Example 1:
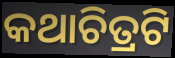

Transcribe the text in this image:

କଥାଚିତ୍ରଟି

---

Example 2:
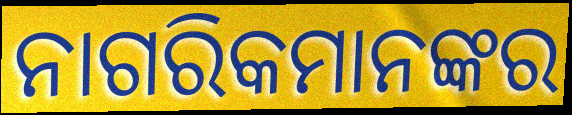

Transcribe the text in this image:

ନାଗରିକମାନଙ୍କର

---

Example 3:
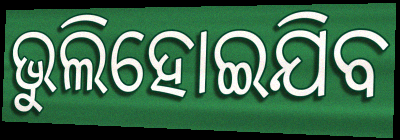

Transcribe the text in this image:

ଭୁଲିହୋଇଯିବ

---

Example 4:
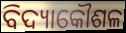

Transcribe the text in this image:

ବିଦ୍ୟାକୌଶଳ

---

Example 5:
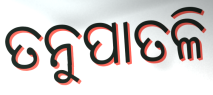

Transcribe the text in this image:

ତନୁପାତଳି